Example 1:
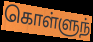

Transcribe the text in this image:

கொள்ளுந்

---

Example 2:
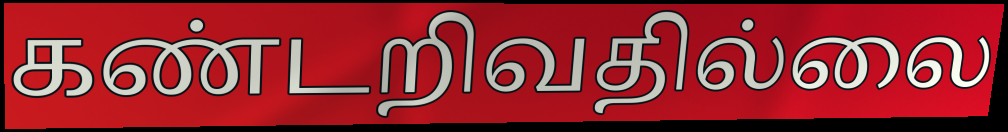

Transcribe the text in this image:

கண்டறிவதில்லை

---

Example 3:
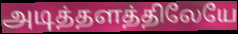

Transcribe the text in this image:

அடித்தளத்திலேயே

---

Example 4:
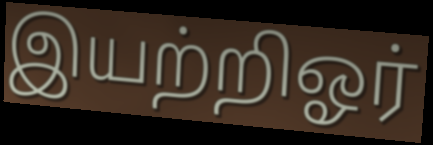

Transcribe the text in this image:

இயற்றிஓர்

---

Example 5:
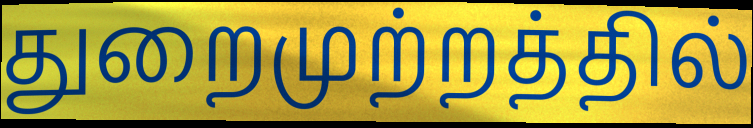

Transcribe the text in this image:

துறைமுற்றத்தில்